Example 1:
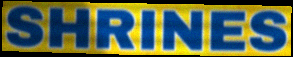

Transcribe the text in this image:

SHRINES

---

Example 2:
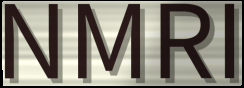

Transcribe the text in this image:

NMRI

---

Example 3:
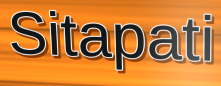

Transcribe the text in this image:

Sitapati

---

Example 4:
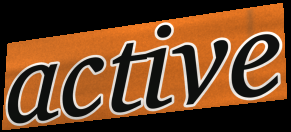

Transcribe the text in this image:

active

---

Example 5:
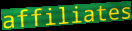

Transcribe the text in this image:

affiliates